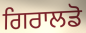
ਗਿਰਾਲਡੋ